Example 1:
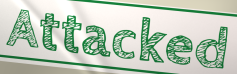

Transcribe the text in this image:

Attacked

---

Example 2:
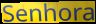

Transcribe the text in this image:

Senhora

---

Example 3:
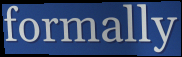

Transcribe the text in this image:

formally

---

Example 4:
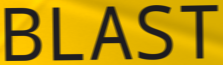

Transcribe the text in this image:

BLAST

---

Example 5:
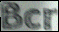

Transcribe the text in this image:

Bcr